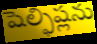
షెల్ఫిష్లను